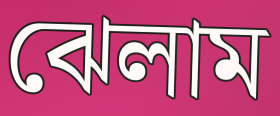
ঝেলাম